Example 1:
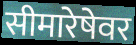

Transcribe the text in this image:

सीमारेषेवर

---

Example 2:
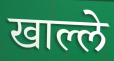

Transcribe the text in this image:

खाल्ले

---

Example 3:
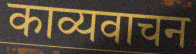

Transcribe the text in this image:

काव्यवाचन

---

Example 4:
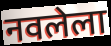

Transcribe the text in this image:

नवलेला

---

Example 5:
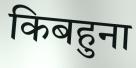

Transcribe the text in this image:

किबहुना